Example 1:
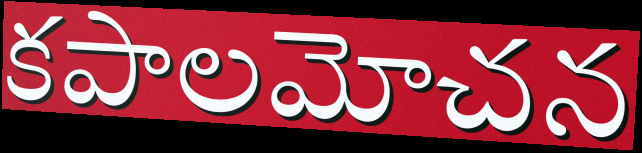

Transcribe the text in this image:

కపాలమోచన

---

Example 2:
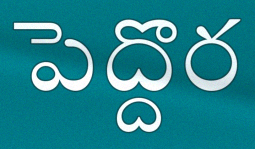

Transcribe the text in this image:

పెద్దొర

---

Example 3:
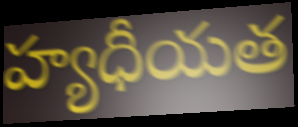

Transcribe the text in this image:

హ్యధీయత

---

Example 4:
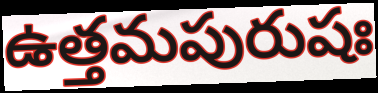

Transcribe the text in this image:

ఉత్తమపురుషః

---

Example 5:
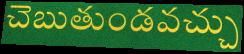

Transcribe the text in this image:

చెబుతుండవచ్చు